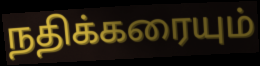
நதிக்கரையும்